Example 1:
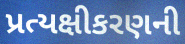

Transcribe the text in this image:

પ્રત્યક્ષીકરણની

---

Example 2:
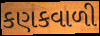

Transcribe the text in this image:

કણકવાળી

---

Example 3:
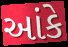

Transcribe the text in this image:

આંકે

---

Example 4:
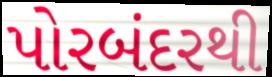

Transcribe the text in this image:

પોરબંદરથી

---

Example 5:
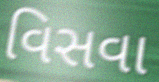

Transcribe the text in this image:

વિસવા